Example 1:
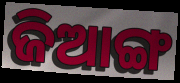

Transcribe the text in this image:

ଜିଆଙ୍ଗ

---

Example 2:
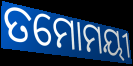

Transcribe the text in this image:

ତମୋମୟୀ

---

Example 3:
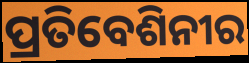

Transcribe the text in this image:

ପ୍ରତିବେଶିନୀର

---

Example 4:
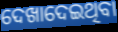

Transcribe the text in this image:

ଦେଖାଦେଇଥିବା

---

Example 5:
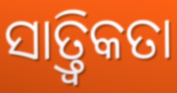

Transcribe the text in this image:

ସାତ୍ତ୍ବିକତା